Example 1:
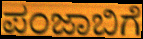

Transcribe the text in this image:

ಪಂಜಾಬಿಗೆ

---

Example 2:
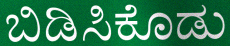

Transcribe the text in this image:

ಬಿಡಿಸಿಕೊಡು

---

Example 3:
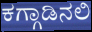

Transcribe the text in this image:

ಕಗ್ಗಾಡಿನಲಿ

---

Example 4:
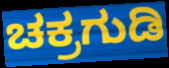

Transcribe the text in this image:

ಚಕ್ರಗುಡಿ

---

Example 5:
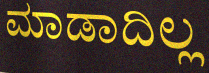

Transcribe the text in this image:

ಮಾಡಾದಿಲ್ಲ